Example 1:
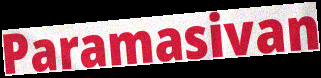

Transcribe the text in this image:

Paramasivan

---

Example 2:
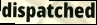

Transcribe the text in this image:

dispatched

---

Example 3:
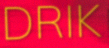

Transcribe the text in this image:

DRIK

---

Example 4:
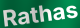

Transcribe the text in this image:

Rathas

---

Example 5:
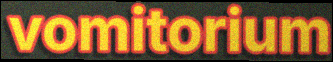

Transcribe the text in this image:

vomitorium